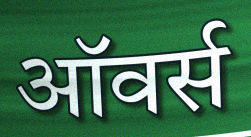
ऑवर्स